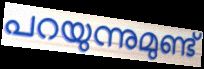
പറയുന്നുമുണ്ട്